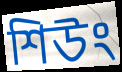
শিউং